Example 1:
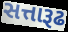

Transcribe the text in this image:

સત્તારૂઢ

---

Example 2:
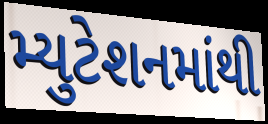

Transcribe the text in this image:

મ્યુટેશનમાંથી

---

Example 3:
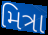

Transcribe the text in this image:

મિત્રા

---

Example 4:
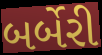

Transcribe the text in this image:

બર્બેરી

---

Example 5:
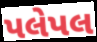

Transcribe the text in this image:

પલેપલ